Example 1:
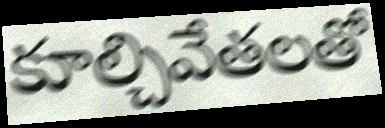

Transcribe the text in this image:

కూల్చివేతలతో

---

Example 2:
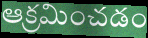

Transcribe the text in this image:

ఆక్రమించడం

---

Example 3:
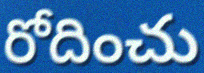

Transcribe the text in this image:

రోదించు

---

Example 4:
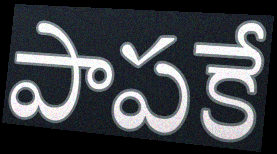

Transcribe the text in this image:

పాపకే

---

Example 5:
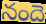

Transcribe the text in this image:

నందె